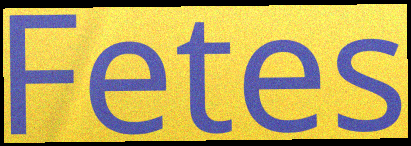
Fetes